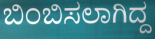
ಬಿಂಬಿಸಲಾಗಿದ್ದ